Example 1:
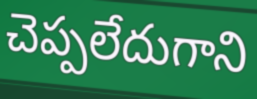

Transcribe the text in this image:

చెప్పలేదుగాని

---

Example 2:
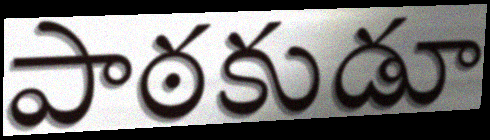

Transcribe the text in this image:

పాఠకుడూ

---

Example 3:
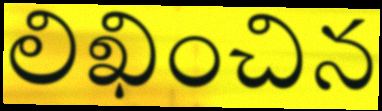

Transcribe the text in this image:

లిఖించిన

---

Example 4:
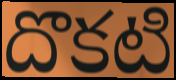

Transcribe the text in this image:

దొకటి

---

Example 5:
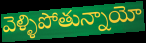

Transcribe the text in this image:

వెళ్ళిపోతున్నాయో